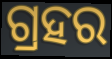
ଗ୍ରହର